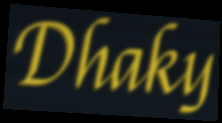
Dhaky